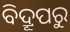
ବିଦ୍ରୂପରୁ